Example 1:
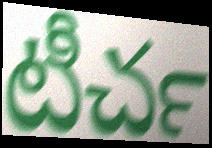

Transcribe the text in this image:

టీచర్‍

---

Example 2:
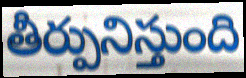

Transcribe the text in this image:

తీర్పునిస్తుంది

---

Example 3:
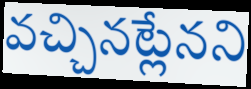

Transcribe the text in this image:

వచ్చినట్లేనని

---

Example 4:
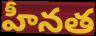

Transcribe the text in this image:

హీనత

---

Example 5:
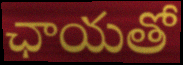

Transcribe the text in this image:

ఛాయతో